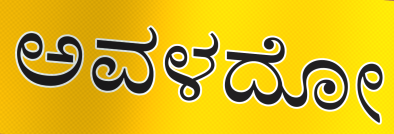
ಅವಳದೋ